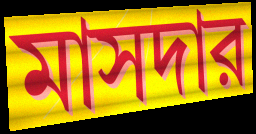
মাসদার